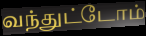
வந்துட்டோம்